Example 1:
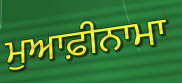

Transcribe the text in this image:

ਮੁਆਫ਼ੀਨਾਮਾ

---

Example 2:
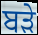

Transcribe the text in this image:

ਬਡ਼ੇ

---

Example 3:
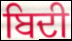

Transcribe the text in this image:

ਬਿਦੀ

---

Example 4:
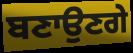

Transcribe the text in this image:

ਬਣਾਉਣਗੇ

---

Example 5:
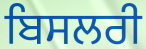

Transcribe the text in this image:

ਬਿਸਲਰੀ